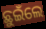
ଛୁଇଁଲେ